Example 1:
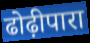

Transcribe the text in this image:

ढोढ़ीपारा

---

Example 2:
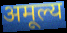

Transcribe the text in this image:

अमूल्य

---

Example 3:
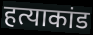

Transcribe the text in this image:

हत्याकांड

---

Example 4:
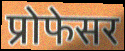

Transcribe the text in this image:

प्रोफेसर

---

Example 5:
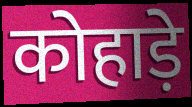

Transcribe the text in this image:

कोहाड़े